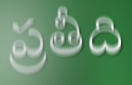
ప్రతీది